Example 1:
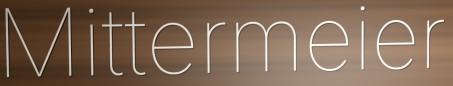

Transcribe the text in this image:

Mittermeier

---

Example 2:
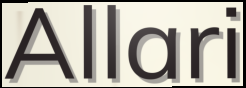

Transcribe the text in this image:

Allari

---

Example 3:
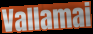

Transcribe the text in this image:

Vallamai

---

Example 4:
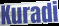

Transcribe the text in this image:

Kuradi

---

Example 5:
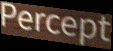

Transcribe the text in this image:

Percept